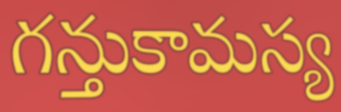
గన్తుకామస్య